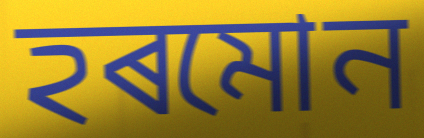
হৰমোন